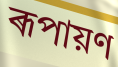
ৰূপায়ণ